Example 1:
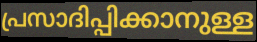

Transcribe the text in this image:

പ്രസാദിപ്പിക്കാനുള്ള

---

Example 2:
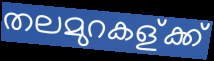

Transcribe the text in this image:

തലമുറകള്ക്ക്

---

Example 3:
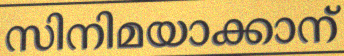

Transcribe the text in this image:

സിനിമയാക്കാന്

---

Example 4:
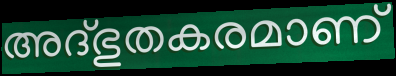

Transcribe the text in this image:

അദ്ഭുതകരമാണ്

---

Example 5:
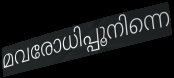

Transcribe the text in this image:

മവരോധിപ്പൂനിന്നെ